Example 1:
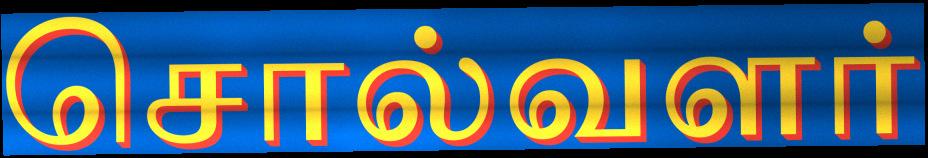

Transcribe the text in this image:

சொல்வளர்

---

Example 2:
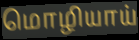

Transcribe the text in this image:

மொழியாய்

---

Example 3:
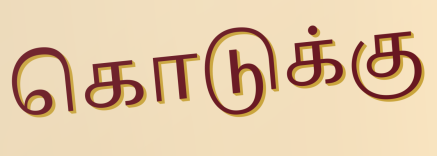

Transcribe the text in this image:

கொடுக்கு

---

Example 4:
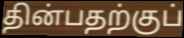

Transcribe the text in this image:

தின்பதற்குப்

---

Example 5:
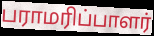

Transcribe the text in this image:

பராமரிப்பாளர்